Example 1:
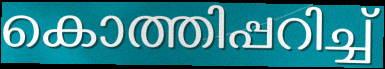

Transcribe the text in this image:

കൊത്തിപ്പറിച്ച്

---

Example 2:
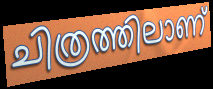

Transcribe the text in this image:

ചിത്രത്തിലാണ്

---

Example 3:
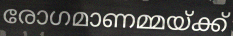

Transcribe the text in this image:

രോഗമാണമ്മയ്ക്ക്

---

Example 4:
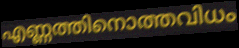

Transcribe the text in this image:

എണ്ണത്തിനൊത്തവിധം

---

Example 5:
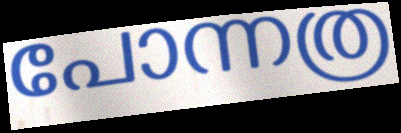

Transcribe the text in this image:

പോന്നത്ര